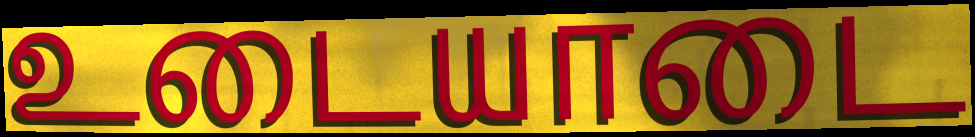
உடையாடை